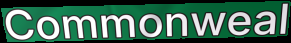
Commonweal